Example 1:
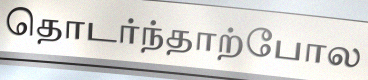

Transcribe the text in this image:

தொடர்ந்தாற்போல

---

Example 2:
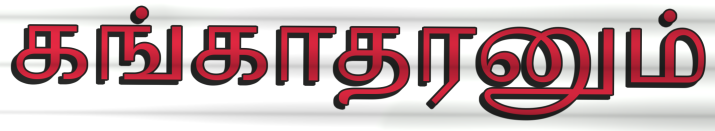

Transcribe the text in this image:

கங்காதரனும்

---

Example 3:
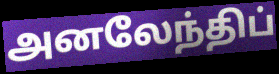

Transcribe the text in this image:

அனலேந்திப்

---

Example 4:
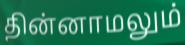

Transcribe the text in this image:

தின்னாமலும்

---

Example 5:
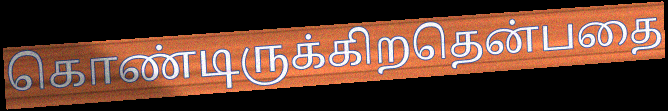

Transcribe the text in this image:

கொண்டிருக்கிறதென்பதை